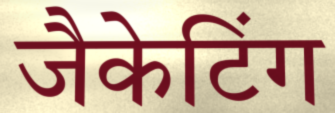
जैकेटिंग